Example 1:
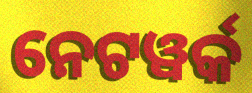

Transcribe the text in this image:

ନେଟୱର୍କ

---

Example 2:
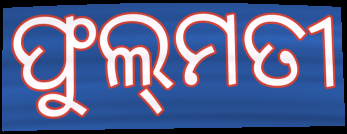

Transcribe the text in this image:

ଫୁଲ୍‍ମତୀ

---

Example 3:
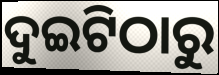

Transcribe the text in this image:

ଦୁଇଟିଠାରୁ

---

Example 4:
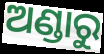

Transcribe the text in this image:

ଅଣ୍ଡାରୁ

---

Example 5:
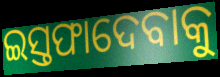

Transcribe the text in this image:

ଇସ୍ତଫାଦେବାକୁ